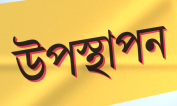
উপস্থাপন